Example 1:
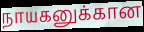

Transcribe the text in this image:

நாயகனுக்கான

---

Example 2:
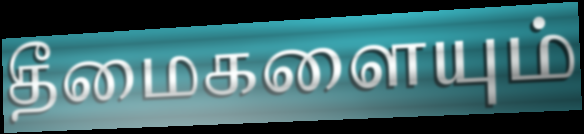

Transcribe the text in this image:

தீமைகளையும்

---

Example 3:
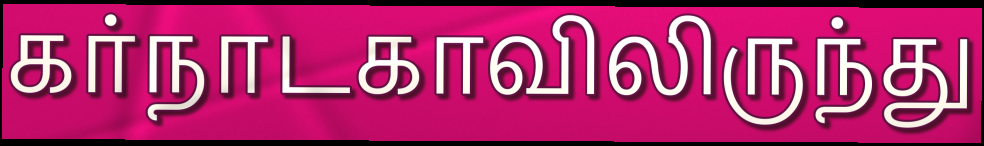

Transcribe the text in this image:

கர்நாடகாவிலிருந்து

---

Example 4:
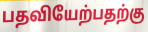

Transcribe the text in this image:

பதவியேற்பதற்கு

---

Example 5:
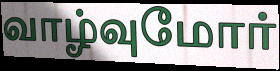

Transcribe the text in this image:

வாழ்வுமோர்